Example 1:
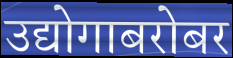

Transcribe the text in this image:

उद्योगाबरोबर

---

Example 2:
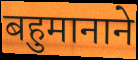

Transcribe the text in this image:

बहुमानाने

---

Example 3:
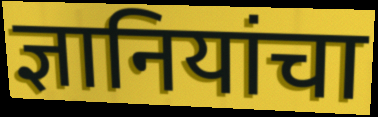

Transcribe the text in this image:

ज्ञानियांचा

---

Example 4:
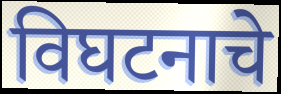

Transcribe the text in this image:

विघटनाचे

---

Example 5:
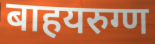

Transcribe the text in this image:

बाहयरुग्ण